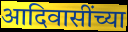
आदिवासींच्या